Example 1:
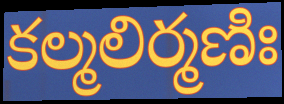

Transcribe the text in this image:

కల్మలిర్మణిః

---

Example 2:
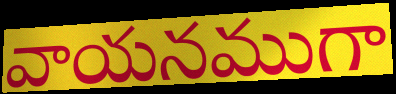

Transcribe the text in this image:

వాయనముగా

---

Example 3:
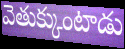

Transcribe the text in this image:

వెతుక్కుంటాడు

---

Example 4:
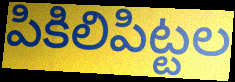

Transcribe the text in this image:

పికిలిపిట్టల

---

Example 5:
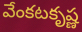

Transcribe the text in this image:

వేంకటకృష్ణ